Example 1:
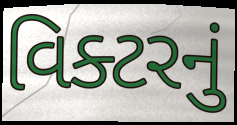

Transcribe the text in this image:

વિક્ટરનું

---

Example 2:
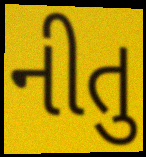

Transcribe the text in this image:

નીતુ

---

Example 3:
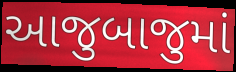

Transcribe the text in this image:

આજુબાજુમાં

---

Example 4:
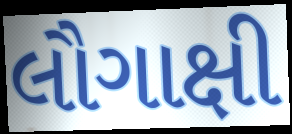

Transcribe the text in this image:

લૌગાક્ષી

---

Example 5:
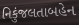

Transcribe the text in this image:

નિકુંજલતાબહેન